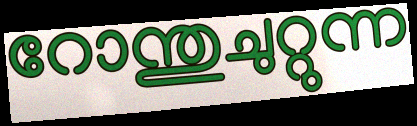
റോന്തുചുറ്റുന്ന